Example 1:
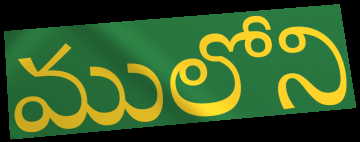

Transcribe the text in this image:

ములోని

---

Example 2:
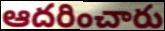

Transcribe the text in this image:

ఆదరించారు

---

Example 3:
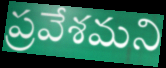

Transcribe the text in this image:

ప్రవేశమని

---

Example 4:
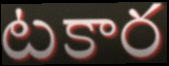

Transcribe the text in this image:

టకార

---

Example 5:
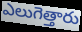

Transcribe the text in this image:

ఎలుగెత్తారు